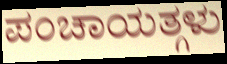
ಪಂಚಾಯತ್ಗಳು